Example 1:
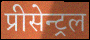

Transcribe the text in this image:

प्रीसेन्ट्रल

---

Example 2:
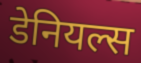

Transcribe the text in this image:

डेनियल्स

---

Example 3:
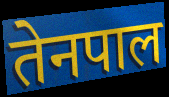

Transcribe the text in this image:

तेनपाल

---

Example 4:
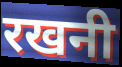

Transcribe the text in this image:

रखनी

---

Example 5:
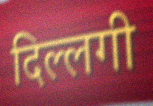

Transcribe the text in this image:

दिल्‍लगी